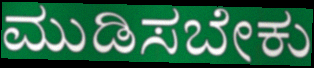
ಮುಡಿಸಬೇಕು